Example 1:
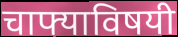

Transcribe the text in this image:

चाफ्याविषयी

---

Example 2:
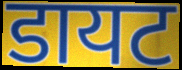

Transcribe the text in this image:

डायट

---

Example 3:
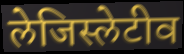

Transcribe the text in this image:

लेजिस्लेटीव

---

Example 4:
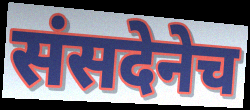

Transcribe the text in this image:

संसदेनेच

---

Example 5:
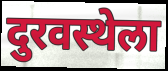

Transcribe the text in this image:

दुरवस्थेला